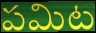
పమిట